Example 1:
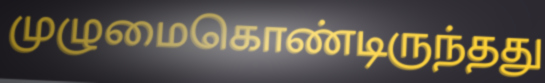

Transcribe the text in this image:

முழுமைகொண்டிருந்தது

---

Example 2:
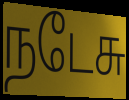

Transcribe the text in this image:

நடேசு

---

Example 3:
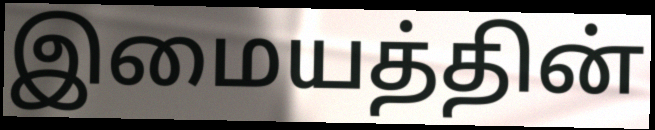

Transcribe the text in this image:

இமையத்தின்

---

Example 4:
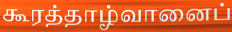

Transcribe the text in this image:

கூரத்தாழ்வானைப்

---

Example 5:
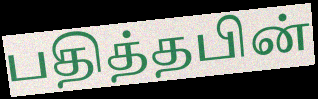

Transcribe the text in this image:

பதித்தபின்